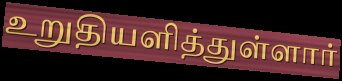
உறுதியளித்துள்ளார்